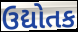
ઉદ્યોતક